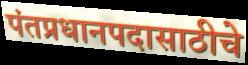
पंतप्रधानपदासाठीचे